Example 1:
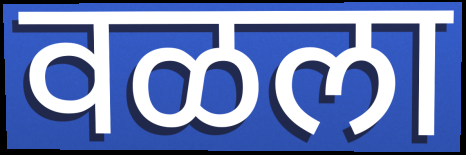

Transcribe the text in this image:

वळला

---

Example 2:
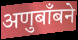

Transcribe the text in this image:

अणुबाँबने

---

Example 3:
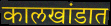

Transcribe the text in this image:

कालखांडात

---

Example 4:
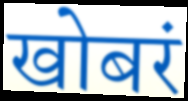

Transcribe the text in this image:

खोबरं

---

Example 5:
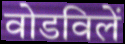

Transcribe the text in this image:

वोडविलें